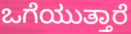
ಒಗೆಯುತ್ತಾರೆ